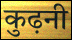
कुढ़नी